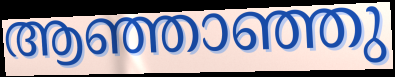
ആഞ്ഞാഞ്ഞു